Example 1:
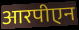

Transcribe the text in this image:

आरपीएन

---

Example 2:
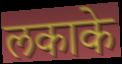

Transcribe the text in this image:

लकाके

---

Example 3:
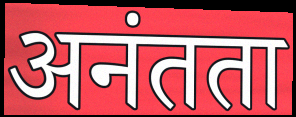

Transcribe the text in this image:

अनंतता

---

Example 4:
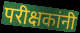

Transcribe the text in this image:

परीक्षकांनी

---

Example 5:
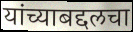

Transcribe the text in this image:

यांच्याबद्दलचा